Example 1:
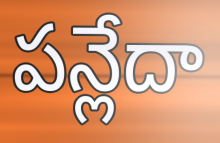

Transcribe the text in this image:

పన్లేదా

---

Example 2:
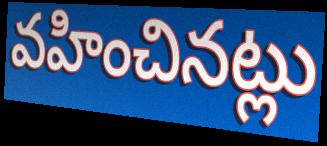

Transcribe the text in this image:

వహించినట్లు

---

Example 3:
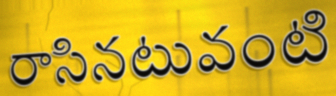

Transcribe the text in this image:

రాసినటువంటి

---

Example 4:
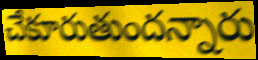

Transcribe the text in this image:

చేకూరుతుందన్నారు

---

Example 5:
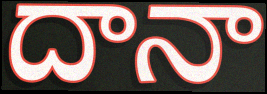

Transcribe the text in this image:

దానా